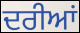
ਦਰੀਆਂ